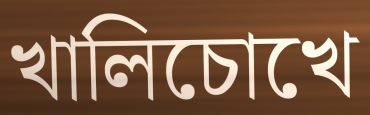
খালিচোখে